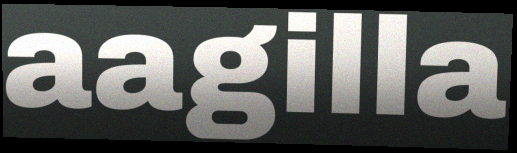
aagilla